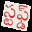
స్టఫ్డ్